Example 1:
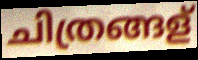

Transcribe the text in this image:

ചിത്രങ്ങള്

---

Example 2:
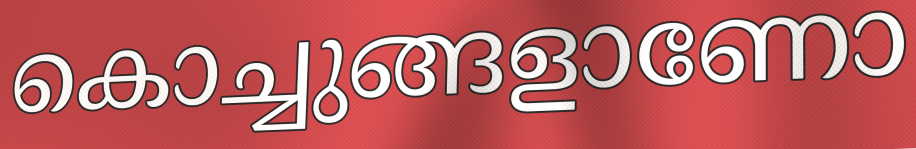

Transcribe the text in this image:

കൊച്ചുങ്ങളാണോ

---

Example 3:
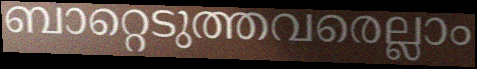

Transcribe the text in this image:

ബാറ്റെടുത്തവരെല്ലാം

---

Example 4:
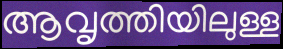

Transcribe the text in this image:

ആവൃത്തിയിലുള്ള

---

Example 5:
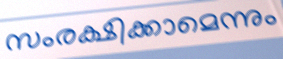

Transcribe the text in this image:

സംരക്ഷിക്കാമെന്നും